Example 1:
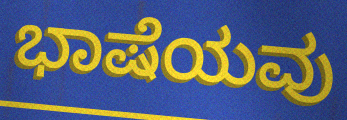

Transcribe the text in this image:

ಭಾಷೆಯವು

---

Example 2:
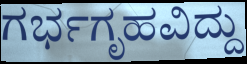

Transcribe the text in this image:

ಗರ್ಭಗೃಹವಿದ್ದು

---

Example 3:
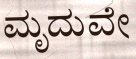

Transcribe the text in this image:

ಮೃದುವೇ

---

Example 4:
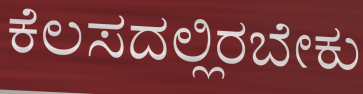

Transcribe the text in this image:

ಕೆಲಸದಲ್ಲಿರಬೇಕು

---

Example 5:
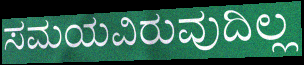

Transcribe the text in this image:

ಸಮಯವಿರುವುದಿಲ್ಲ